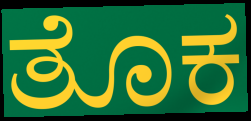
ತೊಕ